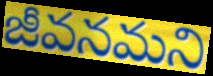
జీవనమని